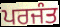
ਪਰਜੰਤ